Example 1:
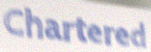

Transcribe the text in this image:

Chartered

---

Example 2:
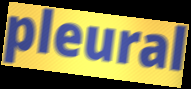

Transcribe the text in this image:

pleural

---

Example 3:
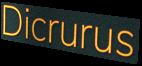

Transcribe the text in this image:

Dicrurus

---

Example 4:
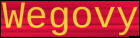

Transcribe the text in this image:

Wegovy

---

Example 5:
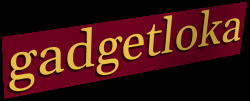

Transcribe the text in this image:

gadgetloka